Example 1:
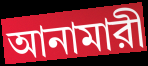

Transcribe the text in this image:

আনামারী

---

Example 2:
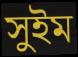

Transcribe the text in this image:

সুইম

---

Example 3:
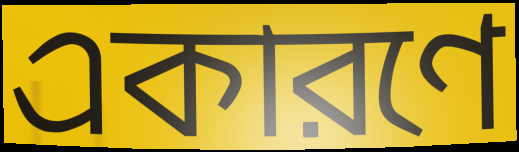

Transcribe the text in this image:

একারণে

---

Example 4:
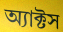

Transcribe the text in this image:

অ্যাক্টস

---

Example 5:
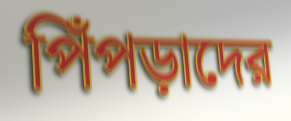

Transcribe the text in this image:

পিঁপড়াদের